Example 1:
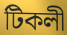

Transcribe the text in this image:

টিকলী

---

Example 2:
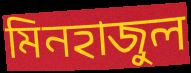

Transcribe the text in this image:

মিনহাজুল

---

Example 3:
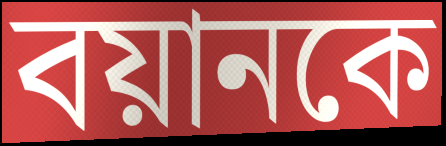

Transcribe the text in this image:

বয়ানকে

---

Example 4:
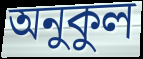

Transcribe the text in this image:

অনুকুল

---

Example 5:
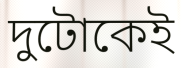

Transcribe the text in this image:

দুটোকেই